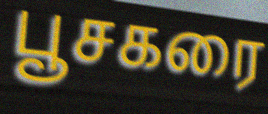
பூசகரை